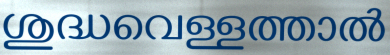
ശുദ്ധവെള്ളത്താൽ